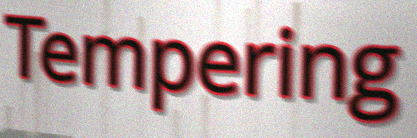
Tempering